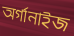
অর্গানাইজ